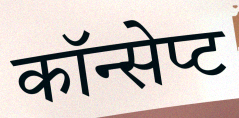
कॉन्‍सेप्‍ट